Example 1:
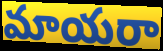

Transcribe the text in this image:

మాయరా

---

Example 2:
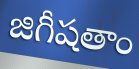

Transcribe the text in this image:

జిగీషతాం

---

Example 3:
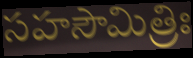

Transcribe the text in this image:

సహసౌమిత్రిః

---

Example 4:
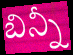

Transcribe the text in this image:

బిన్నీ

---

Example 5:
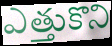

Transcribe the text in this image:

ఎత్తుకొని